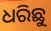
ଧରିଛୁ